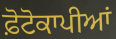
ਫ਼ੋਟੋਕਾਪੀਆਂ